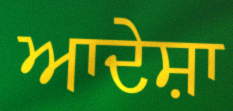
ਆਦੇਸ਼ਾ